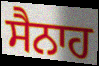
ਸੈਨਾਹ